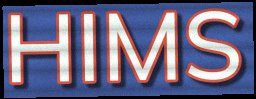
HIMS